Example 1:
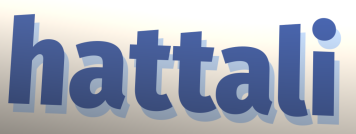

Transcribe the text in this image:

hattali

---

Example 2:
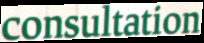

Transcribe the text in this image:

consultation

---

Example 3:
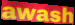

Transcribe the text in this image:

awash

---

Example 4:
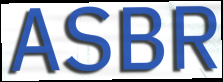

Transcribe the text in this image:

ASBR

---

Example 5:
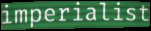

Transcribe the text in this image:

imperialist